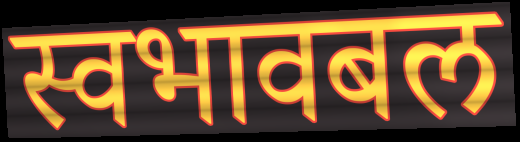
स्वभावबल